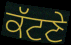
ਕੱਟਣੇ